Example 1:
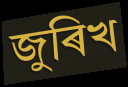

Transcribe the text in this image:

জুৰিখ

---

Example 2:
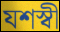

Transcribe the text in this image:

যশস্বী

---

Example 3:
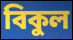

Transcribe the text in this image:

বিকুল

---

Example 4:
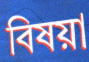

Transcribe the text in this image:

বিষয়া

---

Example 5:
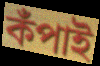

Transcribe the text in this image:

কঁপাই